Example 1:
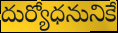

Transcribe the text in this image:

దుర్యోధనునికే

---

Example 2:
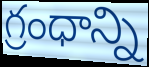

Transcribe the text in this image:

గ్రంధాన్ని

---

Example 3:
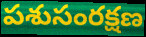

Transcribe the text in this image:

పశుసంరక్షణ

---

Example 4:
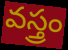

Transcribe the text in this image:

వస్త్రం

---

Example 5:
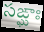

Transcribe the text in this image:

సఙ్ఘాః